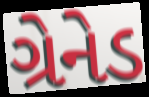
ગ્રેનેડ